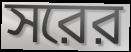
সরের